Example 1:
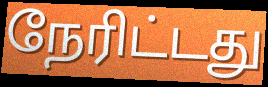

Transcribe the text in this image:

நேரிட்டது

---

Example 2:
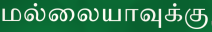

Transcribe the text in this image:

மல்லையாவுக்கு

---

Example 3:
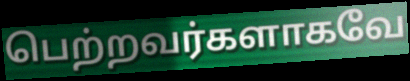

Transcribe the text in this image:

பெற்றவர்களாகவே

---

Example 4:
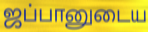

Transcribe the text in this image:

ஜப்பானுடைய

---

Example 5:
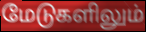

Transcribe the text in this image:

மேடுகளிலும்